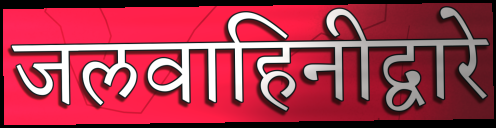
जलवाहिनीद्वारे